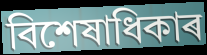
বিশেষাধিকাৰ